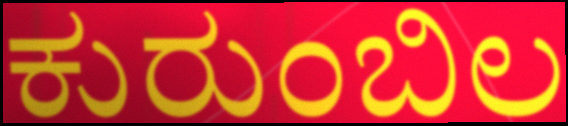
ಕುರುಂಬಿಲ